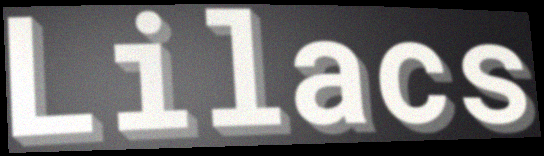
Lilacs